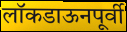
लॉकडाऊनपूर्वी